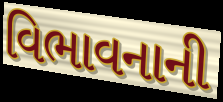
વિભાવનાની